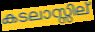
കടലാസ്സില്